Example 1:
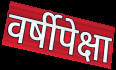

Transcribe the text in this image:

वर्षीपेक्षा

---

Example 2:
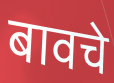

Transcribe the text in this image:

बावचे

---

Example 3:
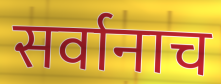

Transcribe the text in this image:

सर्वानाच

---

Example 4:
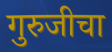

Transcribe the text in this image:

गुरुजीचा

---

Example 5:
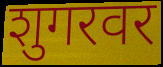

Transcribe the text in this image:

शुगरवर